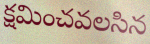
క్షమించవలసిన